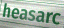
heasarc